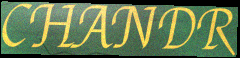
CHANDR